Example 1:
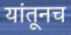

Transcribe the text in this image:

यांतूनच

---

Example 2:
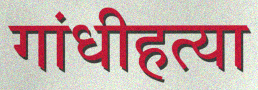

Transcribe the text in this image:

गांधीहत्या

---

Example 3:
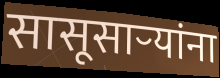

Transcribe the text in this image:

सासूसाऱ्यांना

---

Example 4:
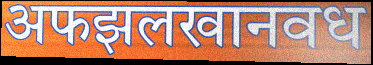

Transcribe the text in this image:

अफझलखानवध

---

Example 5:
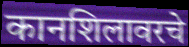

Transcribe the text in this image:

कानशिलावरचे